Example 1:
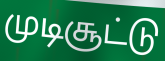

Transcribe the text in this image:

முடிசூட்டு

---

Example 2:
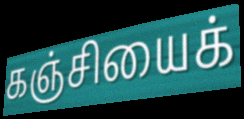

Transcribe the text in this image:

கஞ்சியைக்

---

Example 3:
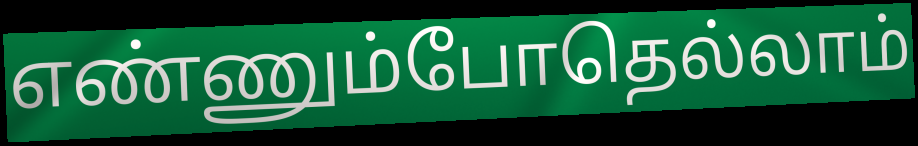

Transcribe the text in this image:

எண்ணும்போதெல்லாம்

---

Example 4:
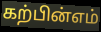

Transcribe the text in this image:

கற்பின்எம்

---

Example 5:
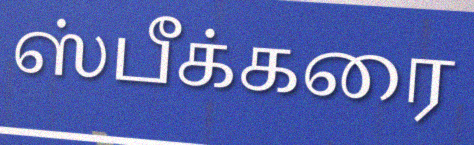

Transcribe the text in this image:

ஸ்பீக்கரை